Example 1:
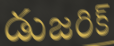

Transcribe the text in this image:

డుజరిక్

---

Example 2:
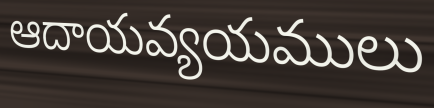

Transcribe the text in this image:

ఆదాయవ్యయములు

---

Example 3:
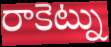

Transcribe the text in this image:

రాకెట్ను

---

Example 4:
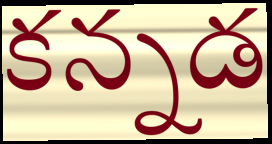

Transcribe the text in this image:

కన్నడ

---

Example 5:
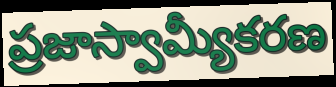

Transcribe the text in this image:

ప్రజాస్వామ్యీకరణ